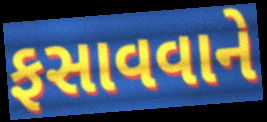
ફસાવવાને